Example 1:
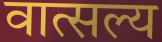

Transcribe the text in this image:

वात्सल्य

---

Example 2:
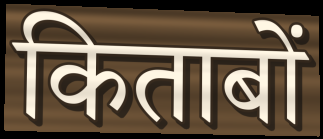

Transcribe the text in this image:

किताबों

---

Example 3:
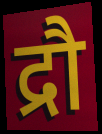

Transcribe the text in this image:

द्रौ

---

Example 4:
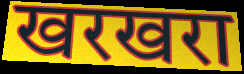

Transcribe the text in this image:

खरखरा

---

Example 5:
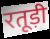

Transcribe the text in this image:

रतूड़ी